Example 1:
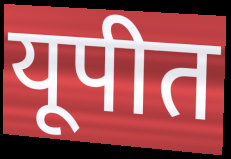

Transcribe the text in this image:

यूपीत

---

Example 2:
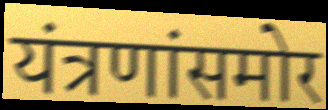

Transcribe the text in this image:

यंत्रणांसमोर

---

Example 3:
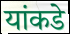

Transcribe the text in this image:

यांकडे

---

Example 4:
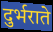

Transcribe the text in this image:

दुर्भराते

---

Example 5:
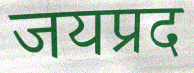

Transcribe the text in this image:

जयप्रद